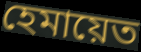
হেমায়েত